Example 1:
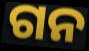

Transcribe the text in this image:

ଗନ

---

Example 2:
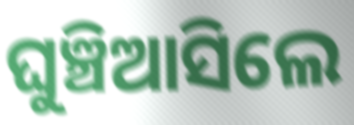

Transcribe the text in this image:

ଘୁଞ୍ଚିଆସିଲେ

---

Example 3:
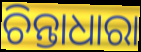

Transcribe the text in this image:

ଚିନ୍ତାଧାରା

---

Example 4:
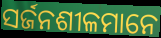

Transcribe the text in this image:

ସର୍ଜନଶୀଳମାନେ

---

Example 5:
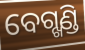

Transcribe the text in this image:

ବେଗ୍ଖଣ୍ଡି